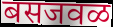
बसजवळ